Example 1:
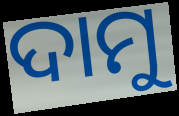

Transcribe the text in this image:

ଦାମୁ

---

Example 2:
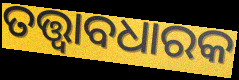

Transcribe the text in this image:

ତତ୍ତ୍ୱାବଧାରକ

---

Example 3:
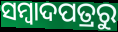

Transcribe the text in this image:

ସମ୍ବାଦପତ୍ରରୁ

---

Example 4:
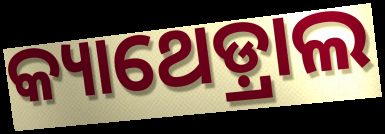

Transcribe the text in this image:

କ୍ୟାଥେଡ଼୍ରାଲ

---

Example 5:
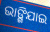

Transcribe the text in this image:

ଭାଙ୍ଗିଯାଇ